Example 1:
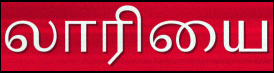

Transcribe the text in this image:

லாரியை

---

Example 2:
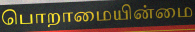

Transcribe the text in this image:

பொறாமையின்மை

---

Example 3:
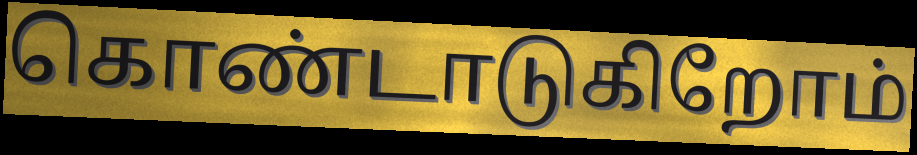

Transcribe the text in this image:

கொண்டாடுகிறோம்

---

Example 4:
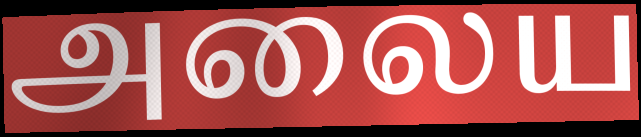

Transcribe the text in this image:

அலைய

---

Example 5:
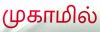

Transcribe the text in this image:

முகாமில்